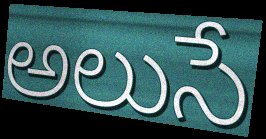
అలుసే